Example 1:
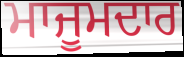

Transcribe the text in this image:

ਮਾਜੂਮਦਾਰ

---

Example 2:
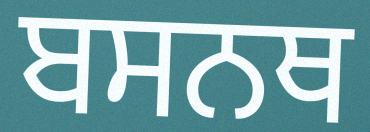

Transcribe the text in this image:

ਬਸਨਥ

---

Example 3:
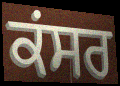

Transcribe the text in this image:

ਕਂਸਰ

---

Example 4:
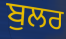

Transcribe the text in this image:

ਬੁਲਰ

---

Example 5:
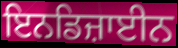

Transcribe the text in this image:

ਇਨਡਿਜ਼ਾਈਨ